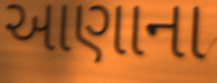
આણાના